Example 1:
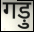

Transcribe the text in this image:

गड़ु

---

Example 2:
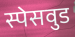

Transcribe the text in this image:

स्पेसवुड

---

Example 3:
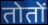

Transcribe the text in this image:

तोतों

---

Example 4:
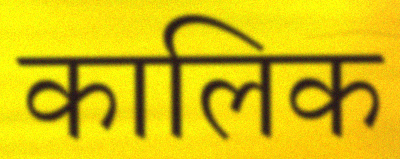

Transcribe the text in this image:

कालिक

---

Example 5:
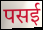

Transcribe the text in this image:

पसई